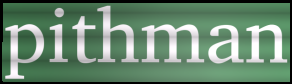
pithman